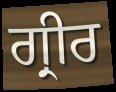
ਗ੍ਰੀਰ